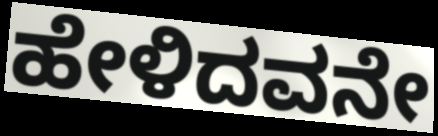
ಹೇಳಿದವನೇ